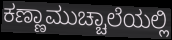
ಕಣ್ಣಾಮುಚ್ಚಾಲೆಯಲ್ಲಿ